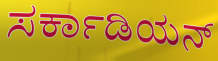
ಸರ್ಕಾಡಿಯನ್